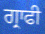
ਗ੍ਰਾਫੀ